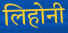
लिहोनी